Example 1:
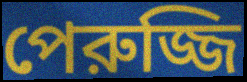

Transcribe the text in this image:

পেরুজ্জি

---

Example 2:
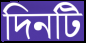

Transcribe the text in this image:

দিনটি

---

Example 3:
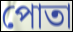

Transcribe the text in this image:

পোতা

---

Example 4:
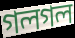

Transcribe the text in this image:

গলগল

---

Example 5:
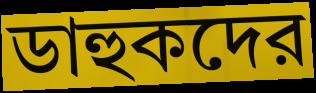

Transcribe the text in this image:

ডাহুকদের